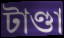
টাণ্ডা